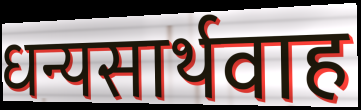
धन्यसार्थवाह